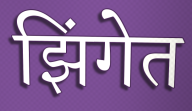
झिंगेत